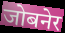
जोबनेर